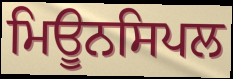
ਮਿਊਨਸਿਪਲ